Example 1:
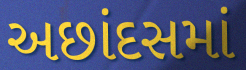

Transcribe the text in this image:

અછાંદસમાં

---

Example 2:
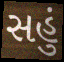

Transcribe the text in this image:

સહું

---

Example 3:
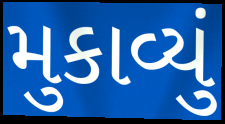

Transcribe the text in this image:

મુકાવ્યું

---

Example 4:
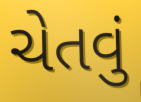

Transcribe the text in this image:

ચેતવું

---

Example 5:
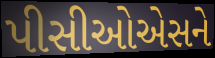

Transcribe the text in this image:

પીસીઓએસને